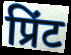
प्रिंट